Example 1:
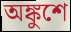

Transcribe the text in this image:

অঙ্কুশে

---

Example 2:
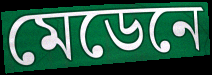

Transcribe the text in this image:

মেডেনে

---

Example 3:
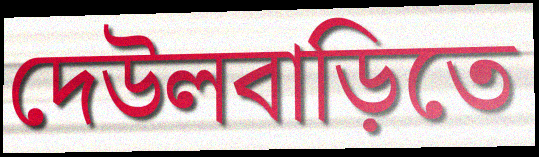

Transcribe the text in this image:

দেউলবাড়িতে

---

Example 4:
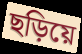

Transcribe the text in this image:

ছড়িয়ে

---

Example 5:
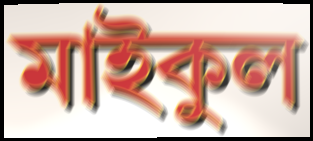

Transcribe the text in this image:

মাইকুল